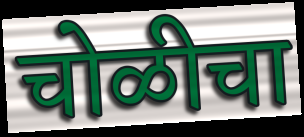
चोळीचा